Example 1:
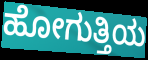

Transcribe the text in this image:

ಹೋಗುತ್ತಿಯ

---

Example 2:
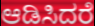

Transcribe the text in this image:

ಆಡಿಸಿದರೆ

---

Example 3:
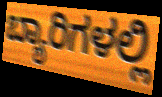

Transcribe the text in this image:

ಬ್ಯಾರಿಗಳಲ್ಲಿ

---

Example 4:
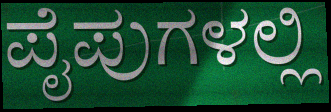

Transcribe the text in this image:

ಪೈಪುಗಳಲ್ಲಿ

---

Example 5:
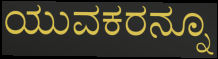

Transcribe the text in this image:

ಯುವಕರನ್ನೂ